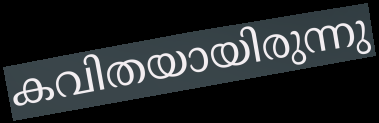
കവിതയായിരുന്നു